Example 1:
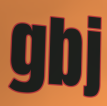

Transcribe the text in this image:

gbj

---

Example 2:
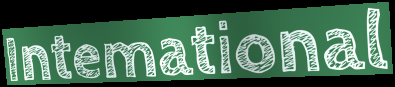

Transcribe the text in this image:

Intemational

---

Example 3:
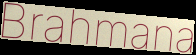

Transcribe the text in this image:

Brahmana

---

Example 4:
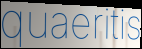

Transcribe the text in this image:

quaeritis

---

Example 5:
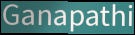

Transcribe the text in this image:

Ganapathi